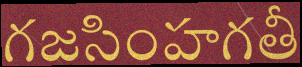
గజసింహగతీ